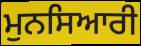
ਮੁਨਸਿਆਰੀ